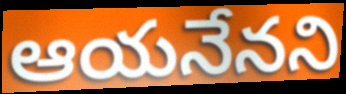
ఆయనేనని